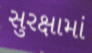
સુરક્ષામાં